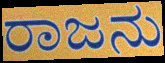
ರಾಜನು